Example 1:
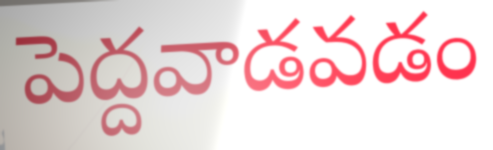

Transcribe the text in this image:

పెద్దవాడవడం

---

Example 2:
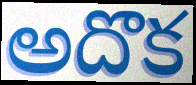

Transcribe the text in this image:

అదొక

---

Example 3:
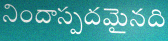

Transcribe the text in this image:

నిందాస్పదమైనది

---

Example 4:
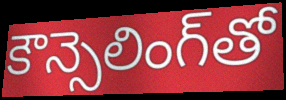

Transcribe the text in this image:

కౌన్సెలింగ్‌తో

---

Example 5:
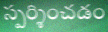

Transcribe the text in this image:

స్పర్శించడం